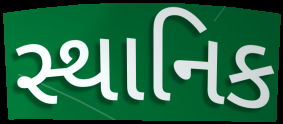
સ્થાનિક